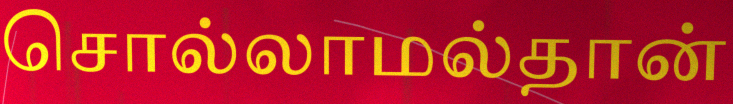
சொல்லாமல்தான்